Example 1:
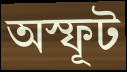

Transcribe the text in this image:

অস্ফূট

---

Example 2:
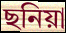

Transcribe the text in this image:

ছনিয়া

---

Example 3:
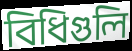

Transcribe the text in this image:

বিধিগুলি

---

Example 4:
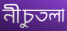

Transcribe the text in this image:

নীচুতলা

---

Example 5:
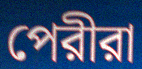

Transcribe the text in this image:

পেরীরা